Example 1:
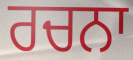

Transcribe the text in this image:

ਰਚਨਾ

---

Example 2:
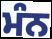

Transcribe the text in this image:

ਮੰਨ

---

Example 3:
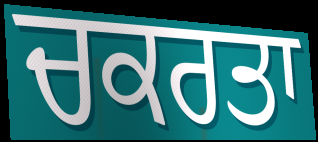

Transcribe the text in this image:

ਚਕਰਤਾ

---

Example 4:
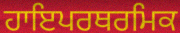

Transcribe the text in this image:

ਹਾਇਪਰਥਰਮਿਕ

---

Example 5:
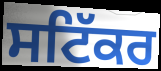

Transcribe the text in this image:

ਸਟਿੱਕਰ